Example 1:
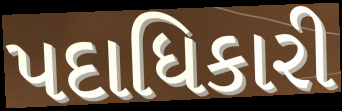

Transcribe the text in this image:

પદાધિકારી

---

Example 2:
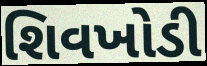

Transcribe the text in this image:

શિવખોડી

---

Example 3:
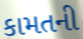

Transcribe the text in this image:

કામતની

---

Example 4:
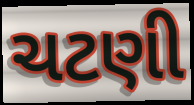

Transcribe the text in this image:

ચટણી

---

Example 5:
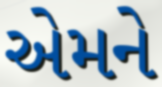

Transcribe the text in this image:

એમને